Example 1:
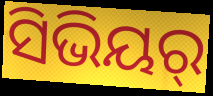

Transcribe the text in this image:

ସିଭିୟର୍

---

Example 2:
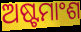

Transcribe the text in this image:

ଅଷ୍ଟମାଂଶ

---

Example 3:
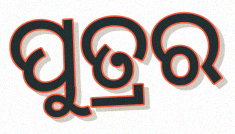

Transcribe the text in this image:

ପୁତ୍ରର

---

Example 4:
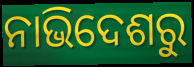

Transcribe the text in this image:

ନାଭିଦେଶରୁ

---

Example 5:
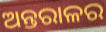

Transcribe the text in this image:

ଅନ୍ତରାଳର